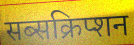
सब्सक्रिप्शन